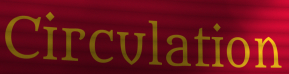
Circulation